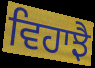
ਵਿਹਾਝੈ